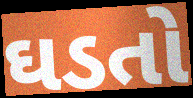
ઘડતો